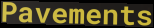
Pavements